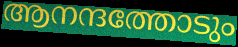
ആനന്ദത്തോടും